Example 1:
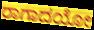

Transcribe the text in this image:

ರಾಗಾದಯೋ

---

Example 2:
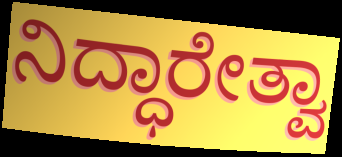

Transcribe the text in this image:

ನಿದ್ಧಾರೇತ್ವಾ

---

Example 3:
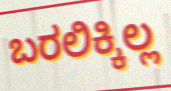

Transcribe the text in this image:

ಬರಲಿಕ್ಕಿಲ್ಲ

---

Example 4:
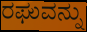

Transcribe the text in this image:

ರಘುವನ್ನು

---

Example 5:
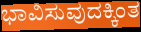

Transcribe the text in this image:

ಭಾವಿಸುವುದಕ್ಕಿಂತ